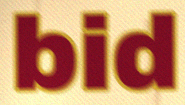
bid